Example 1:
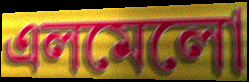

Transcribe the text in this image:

এলমেলো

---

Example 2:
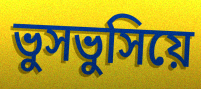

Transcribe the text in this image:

ভুসভুসিয়ে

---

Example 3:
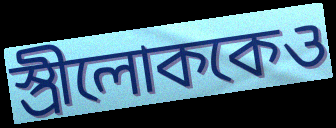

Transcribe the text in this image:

স্ত্রীলোককেও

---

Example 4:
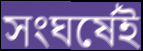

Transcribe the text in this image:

সংঘর্ষেই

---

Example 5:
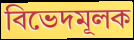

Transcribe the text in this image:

বিভেদমূলক